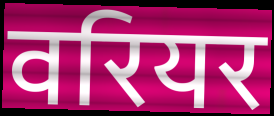
वरियर